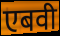
एबवी